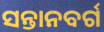
ସନ୍ତାନବର୍ଗ